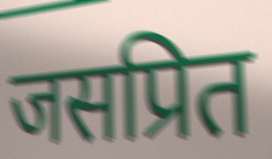
जसप्रित